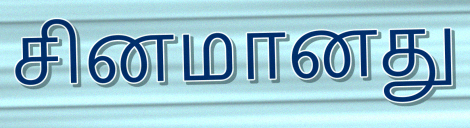
சினமானது